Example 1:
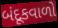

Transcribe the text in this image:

બંદૂકવાળો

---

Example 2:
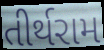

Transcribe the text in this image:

તીર્થરામ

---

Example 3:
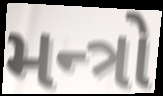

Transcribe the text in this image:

મન્ત્રો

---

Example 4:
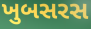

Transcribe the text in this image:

ખુબસરસ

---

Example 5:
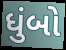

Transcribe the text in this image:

ધુંબો